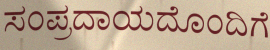
ಸಂಪ್ರದಾಯದೊಂದಿಗೆ